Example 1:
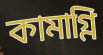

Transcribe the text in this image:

কামাগ্নি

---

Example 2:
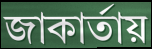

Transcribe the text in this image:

জাকার্তায়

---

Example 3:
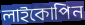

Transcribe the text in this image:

লাইকোপিন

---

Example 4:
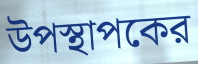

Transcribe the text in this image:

উপস্থাপকের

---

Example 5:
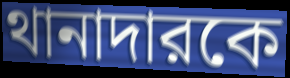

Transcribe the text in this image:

থানাদারকে